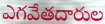
ఎగవేతదారుల